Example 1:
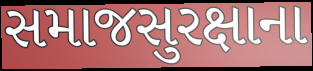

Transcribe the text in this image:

સમાજસુરક્ષાના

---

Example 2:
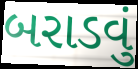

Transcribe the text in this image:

બરાડવું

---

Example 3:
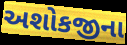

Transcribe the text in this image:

અશોકજીના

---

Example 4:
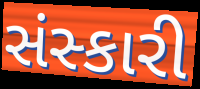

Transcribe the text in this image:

સંસ્કારી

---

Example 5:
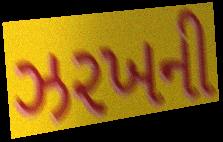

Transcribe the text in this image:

ઝરખની